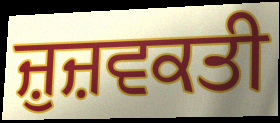
ਜ਼ੁਜ਼ਵਕਤੀ